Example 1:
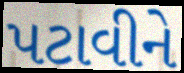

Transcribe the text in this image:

પટાવીને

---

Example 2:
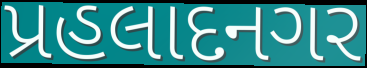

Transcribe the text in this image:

પ્રહલાદનગર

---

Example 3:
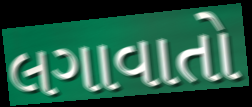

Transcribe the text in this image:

લગાવાતો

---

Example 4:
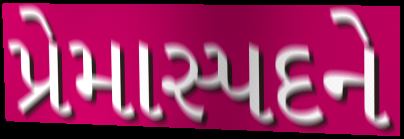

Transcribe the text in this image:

પ્રેમાસ્પદને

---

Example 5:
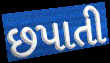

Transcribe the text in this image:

છપાતી